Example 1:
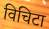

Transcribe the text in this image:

विचिटा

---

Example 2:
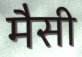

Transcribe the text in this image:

मैसी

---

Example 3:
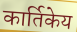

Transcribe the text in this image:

कार्तिकेय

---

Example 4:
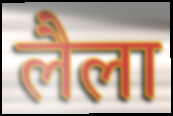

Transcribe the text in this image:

लैला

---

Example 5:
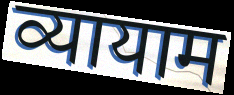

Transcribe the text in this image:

व्यायाम